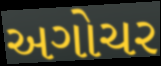
અગોચર